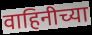
वाहिनीच्या